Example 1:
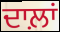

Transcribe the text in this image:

ਦਾਲ਼ਾਂ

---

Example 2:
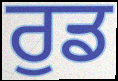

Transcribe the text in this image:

ਰੁਡ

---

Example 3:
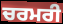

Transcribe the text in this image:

ਚਰਮਰੀ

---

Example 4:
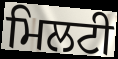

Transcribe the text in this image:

ਮਿਲਟੀ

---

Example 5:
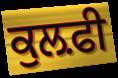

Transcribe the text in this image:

ਕੁਲ਼ਫੀ